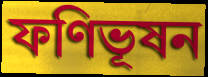
ফণিভূষন